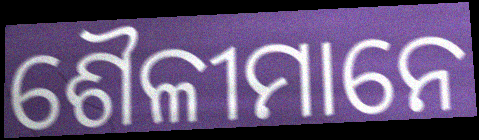
ଶୈଳୀମାନେ